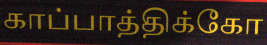
காப்பாத்திக்கோ